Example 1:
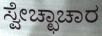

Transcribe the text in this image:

ಸ್ವೇಚ್ಛಾಚಾರ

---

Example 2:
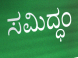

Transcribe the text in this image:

ಸಮಿದ್ಧಂ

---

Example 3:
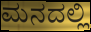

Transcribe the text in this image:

ಮನದಲ್ಲಿ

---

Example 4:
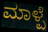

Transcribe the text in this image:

ಮಾಳ್ಪೆ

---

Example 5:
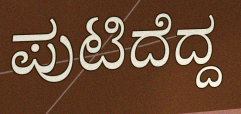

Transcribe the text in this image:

ಪುಟಿದೆದ್ದ